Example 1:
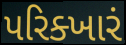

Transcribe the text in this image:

પરિક્ખારં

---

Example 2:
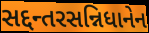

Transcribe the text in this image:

સદ્દન્તરસન્નિધાનેન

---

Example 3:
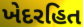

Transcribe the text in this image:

ખેદરહિત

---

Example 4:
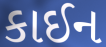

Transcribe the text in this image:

કાઈન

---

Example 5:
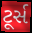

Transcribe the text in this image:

ટૂર્સ